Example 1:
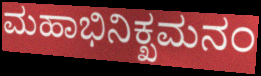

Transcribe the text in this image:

ಮಹಾಭಿನಿಕ್ಖಮನಂ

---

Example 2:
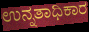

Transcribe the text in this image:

ಉನ್ನತಾಧಿಕಾರ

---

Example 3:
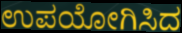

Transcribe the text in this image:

ಉಪಯೋಗಿಸಿದ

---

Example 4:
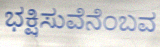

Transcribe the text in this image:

ಭಕ್ಷಿಸುವೆನೆಂಬವ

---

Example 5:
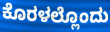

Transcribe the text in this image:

ಕೊರಳಲ್ಲೊಂದು